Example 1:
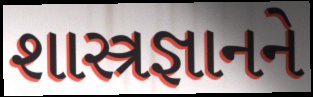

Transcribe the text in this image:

શાસ્ત્રજ્ઞાનને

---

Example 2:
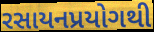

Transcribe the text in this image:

રસાયનપ્રયોગથી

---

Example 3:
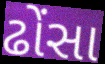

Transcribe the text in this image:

ઢોંસા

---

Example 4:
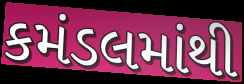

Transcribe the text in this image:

કમંડલમાંથી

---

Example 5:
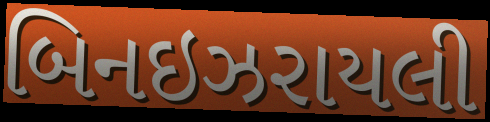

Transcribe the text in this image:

બિનઇઝરાયલી